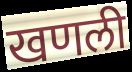
खणली